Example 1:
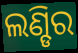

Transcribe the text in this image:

ଲଣ୍ଡିର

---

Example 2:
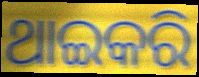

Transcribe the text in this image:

ଥାଇକରି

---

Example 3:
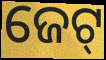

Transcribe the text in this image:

ଜେଟ୍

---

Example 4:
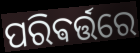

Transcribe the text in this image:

ପରିଵର୍ତ୍ତରେ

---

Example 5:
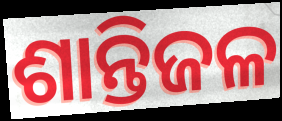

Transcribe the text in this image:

ଶାନ୍ତିଜଳ